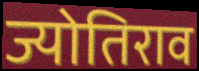
ज्योतिराव